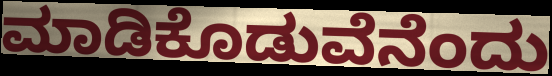
ಮಾಡಿಕೊಡುವೆನೆಂದು